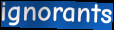
ignorants